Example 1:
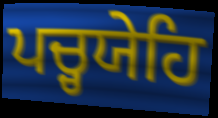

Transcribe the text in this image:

ਪਚ੍ਚਯੇਹਿ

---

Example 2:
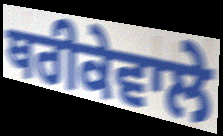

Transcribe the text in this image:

ਥਰੀਕੇਵਾਲੇ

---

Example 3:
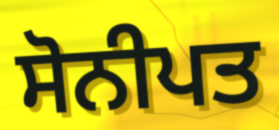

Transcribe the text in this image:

ਸੋਨੀਪਤ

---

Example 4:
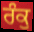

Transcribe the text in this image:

ਰੰਕੁ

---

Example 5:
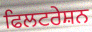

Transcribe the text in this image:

ਫਿਲਟਰੇਸ਼ਨ